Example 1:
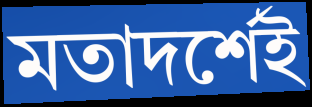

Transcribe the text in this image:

মতাদর্শেই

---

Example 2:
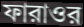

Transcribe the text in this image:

ফারাওর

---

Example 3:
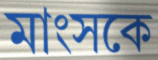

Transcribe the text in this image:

মাংসকে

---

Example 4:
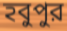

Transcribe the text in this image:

হবুপুর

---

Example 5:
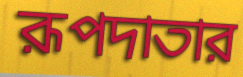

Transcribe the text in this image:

রূপদাতার